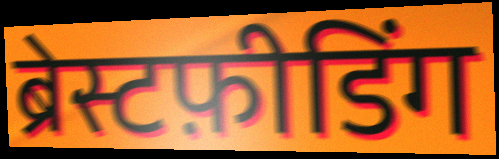
ब्रेस्टफ़ीडिंग